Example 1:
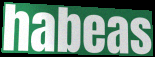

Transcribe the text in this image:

habeas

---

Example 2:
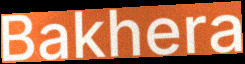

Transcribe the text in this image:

Bakhera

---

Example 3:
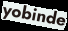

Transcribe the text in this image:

yobinde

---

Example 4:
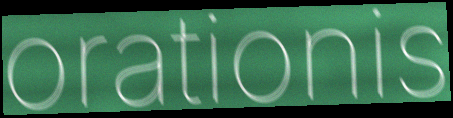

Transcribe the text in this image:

orationis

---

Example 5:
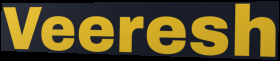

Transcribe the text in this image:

Veeresh